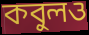
কবুলও